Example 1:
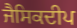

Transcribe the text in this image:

ਜੈਸਿਕਦੀਪ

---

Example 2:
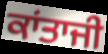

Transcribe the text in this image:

ਕਾਂਤਾਜੀ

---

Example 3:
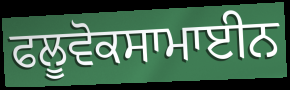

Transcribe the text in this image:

ਫਲੂਵੋਕਸਾਮਾਈਨ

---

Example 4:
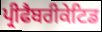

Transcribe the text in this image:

ਪ੍ਰੀਫੈਬਰੀਕੇਟਿਡ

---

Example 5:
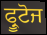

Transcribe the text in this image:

ਫ੍ਰੂਟੋਜ